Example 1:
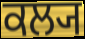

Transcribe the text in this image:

ਕਲ੍ਯ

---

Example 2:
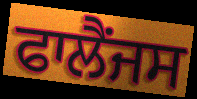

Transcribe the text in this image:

ਫਾਲੈਂਜਸ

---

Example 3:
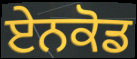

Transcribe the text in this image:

ਏਨਕੋਡ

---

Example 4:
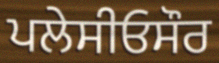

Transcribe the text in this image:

ਪਲੇਸੀਓਸੌਰ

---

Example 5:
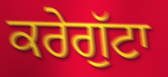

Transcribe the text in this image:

ਕਰੇਗੁੱਟਾ